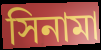
সিনামা